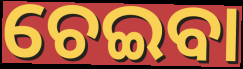
ଚେଇବା